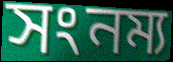
সংনম্য